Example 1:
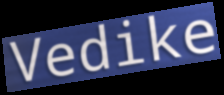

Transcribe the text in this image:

Vedike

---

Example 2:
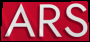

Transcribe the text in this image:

ARS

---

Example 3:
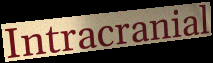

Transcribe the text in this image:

Intracranial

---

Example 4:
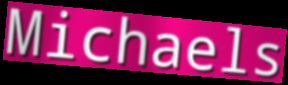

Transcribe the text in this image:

Michaels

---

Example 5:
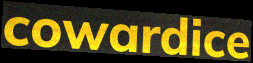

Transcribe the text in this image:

cowardice